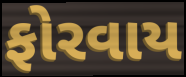
ફોરવાય